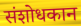
संशोधकान